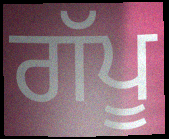
ਗੱਪੂ